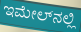
ಇಮೇಲ್‌ನಲ್ಲಿ